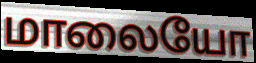
மாலையோ